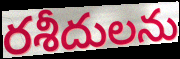
రశీదులను